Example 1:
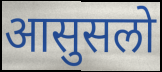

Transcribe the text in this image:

आसुसलो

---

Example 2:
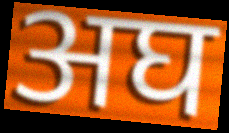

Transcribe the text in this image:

अघ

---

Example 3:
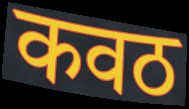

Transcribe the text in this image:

कवठ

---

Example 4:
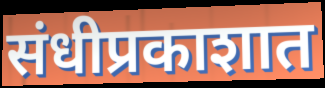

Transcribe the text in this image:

संधीप्रकाशात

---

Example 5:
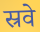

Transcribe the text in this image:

स्रवे